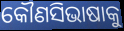
କୌଣସିଭାଷାକୁ